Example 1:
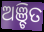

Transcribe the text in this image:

ଅଞ୍ଚିତ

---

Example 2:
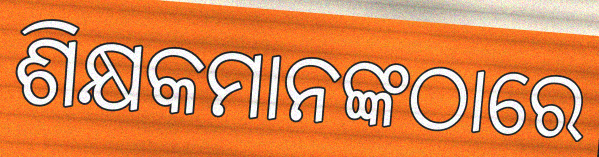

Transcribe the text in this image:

ଶିକ୍ଷକମାନଙ୍କଠାରେ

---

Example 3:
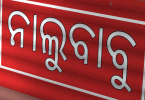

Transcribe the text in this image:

ନାଲୁବାବୁ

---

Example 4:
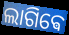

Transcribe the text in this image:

ଲାଗିଵେ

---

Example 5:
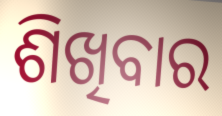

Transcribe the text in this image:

ଶିଖିବାର